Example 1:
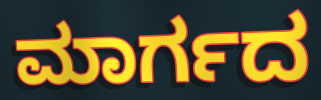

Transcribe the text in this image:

ಮಾರ್ಗದ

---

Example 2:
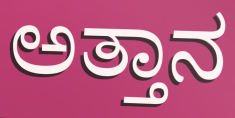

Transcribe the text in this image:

ಅತ್ತಾನ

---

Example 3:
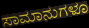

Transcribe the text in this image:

ಸಾಮಾನುಗಳೂ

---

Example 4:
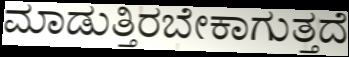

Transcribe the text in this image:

ಮಾಡುತ್ತಿರಬೇಕಾಗುತ್ತದೆ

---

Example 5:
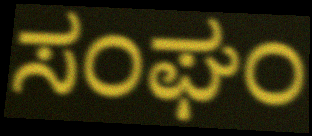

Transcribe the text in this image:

ಸಂಘಂ